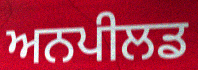
ਅਨਪੀਲਡ